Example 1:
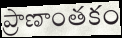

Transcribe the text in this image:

ప్రాణాంతకం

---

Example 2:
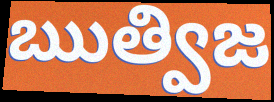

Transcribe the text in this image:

ఋత్విజ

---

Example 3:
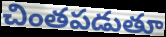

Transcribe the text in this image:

చింతపడుతూ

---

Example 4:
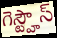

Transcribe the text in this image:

గెస్ట్హౌస్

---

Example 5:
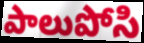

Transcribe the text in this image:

పాలుపోసి